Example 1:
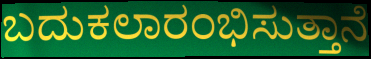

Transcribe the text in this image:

ಬದುಕಲಾರಂಭಿಸುತ್ತಾನೆ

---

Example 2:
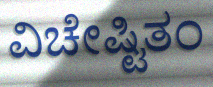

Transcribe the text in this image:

ವಿಚೇಷ್ಟಿತಂ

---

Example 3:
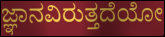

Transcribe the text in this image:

ಜ್ಞಾನವಿರುತ್ತದೆಯೋ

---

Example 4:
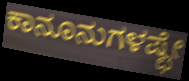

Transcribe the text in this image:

ಕಾನೂನುಗಳಷ್ಟೇ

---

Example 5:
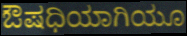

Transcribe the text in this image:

ಔಷಧಿಯಾಗಿಯೂ